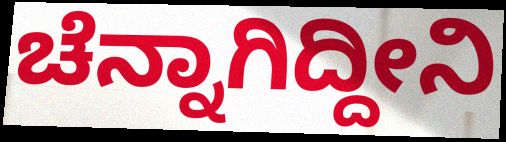
ಚೆನ್ನಾಗಿದ್ದೀನಿ